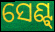
ସେଣ୍ଟ୍